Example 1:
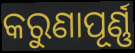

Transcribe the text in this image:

କରୁଣାପୂର୍ଣ୍ଣ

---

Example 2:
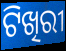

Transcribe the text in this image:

ଟିଖିରୀ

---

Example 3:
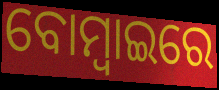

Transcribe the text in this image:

ବୋମ୍ୱାଇରେ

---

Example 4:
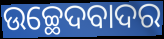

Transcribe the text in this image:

ଉଚ୍ଛେଦବାଦର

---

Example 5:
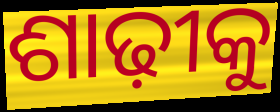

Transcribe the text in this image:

ଶାଢ଼ୀକୁ